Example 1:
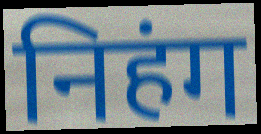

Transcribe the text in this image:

निहंग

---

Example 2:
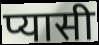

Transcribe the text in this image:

प्यासी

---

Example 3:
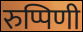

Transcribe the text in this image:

रुप्पिणी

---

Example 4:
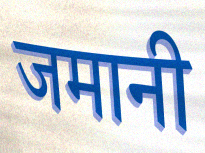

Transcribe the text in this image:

जमानी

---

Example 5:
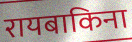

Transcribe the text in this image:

रायबाकिना